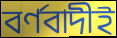
বর্ণবাদীই